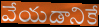
వేయడానికే